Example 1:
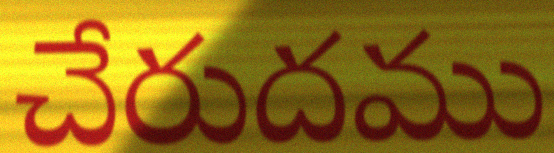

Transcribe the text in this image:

చేరుదము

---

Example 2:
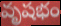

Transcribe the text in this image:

వృషభం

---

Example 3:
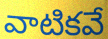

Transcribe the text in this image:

వాటికవే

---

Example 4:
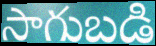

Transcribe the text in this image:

సాగుబడి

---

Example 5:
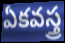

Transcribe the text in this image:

ఏకవస్త్ర